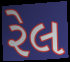
રેલ